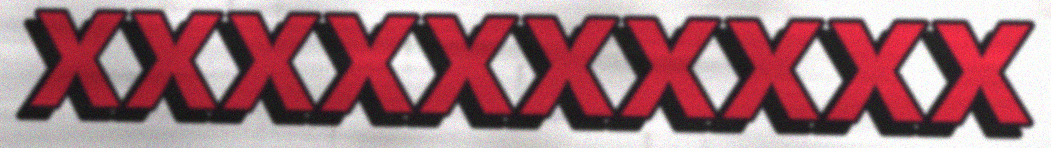
xxxxxxxxxx